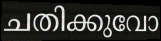
ചതിക്കുവോ